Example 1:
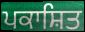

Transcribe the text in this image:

ਪਕਾਸ਼ਿਤ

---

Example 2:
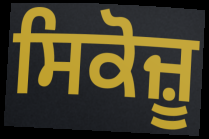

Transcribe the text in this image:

ਸਿਕੋਜ਼ੂ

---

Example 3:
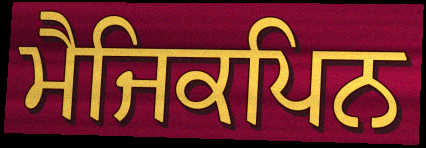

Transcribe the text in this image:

ਮੈਜਿਕਪਿਨ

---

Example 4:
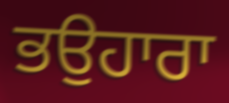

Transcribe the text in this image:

ਭਉਹਾਰਾ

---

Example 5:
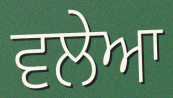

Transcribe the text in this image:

ਵਲੇਆ